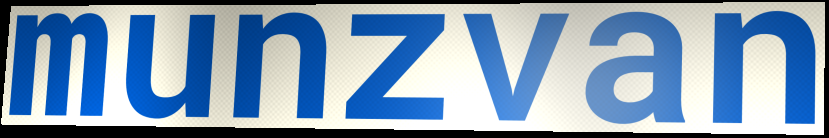
munzvan